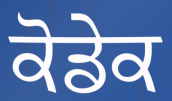
ਕੋਡੇਕ